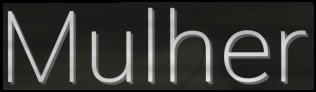
Mulher